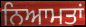
ਨਿਆਮਤਾਂ